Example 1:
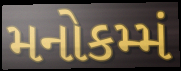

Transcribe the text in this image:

મનોકમ્મં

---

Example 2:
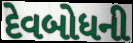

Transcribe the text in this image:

દેવબોધની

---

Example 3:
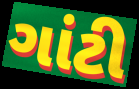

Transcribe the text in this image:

ગાંટી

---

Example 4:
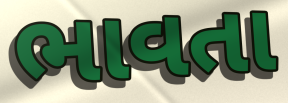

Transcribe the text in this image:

ભાવતા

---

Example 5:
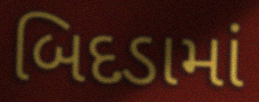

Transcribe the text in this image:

બિદડામાં